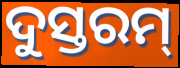
ଦୁସ୍ତରମ୍